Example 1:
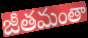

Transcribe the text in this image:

జీతమంతా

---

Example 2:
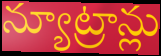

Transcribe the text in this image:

న్యూట్రాన్లు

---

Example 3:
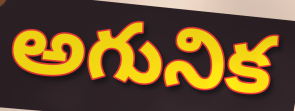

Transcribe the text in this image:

అగునిక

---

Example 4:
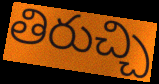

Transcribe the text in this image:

తిరుచ్చి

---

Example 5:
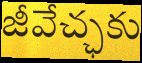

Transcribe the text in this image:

జీవేచ్ఛకు